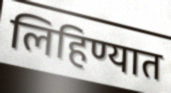
लिहिण्यात